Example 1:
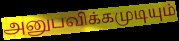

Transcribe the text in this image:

அனுபவிக்கமுடியும்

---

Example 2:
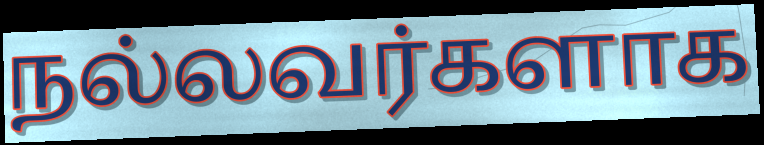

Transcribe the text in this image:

நல்லவர்களாக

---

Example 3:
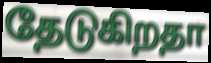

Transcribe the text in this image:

தேடுகிறதா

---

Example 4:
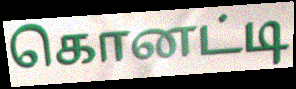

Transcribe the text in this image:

கொனட்டி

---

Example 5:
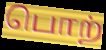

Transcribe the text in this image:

பொற்